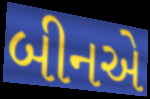
બીનએ